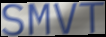
SMVT